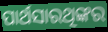
ପାର୍ଥସାରଥିଙ୍କର